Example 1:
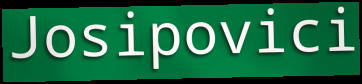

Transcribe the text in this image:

Josipovici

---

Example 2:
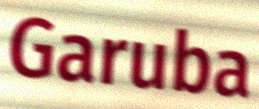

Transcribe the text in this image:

Garuba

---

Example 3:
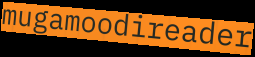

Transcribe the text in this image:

mugamoodireader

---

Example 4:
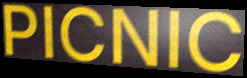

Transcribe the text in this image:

PICNIC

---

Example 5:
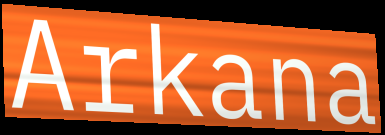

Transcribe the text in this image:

Arkana